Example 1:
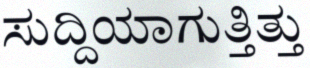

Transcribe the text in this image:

ಸುದ್ದಿಯಾಗುತ್ತಿತ್ತು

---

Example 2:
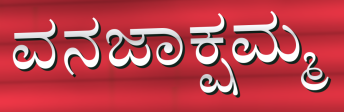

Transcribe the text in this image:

ವನಜಾಕ್ಷಮ್ಮ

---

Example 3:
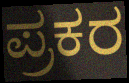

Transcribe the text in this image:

ಪ್ರಕರ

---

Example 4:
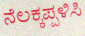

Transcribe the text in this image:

ನೆಲಕ್ಕಪ್ಪಳಿಸಿ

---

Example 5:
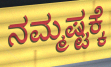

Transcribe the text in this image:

ನಮ್ಮಷ್ಟಕ್ಕೆ